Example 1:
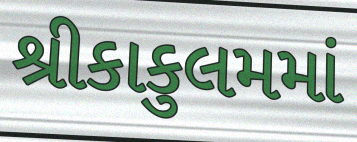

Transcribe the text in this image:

શ્રીકાકુલમમાં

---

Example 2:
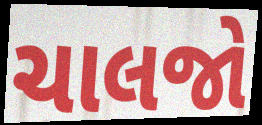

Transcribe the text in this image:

ચાલજો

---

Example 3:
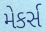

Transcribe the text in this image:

મેકર્સ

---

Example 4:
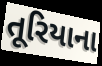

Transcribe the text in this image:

તૂરિયાના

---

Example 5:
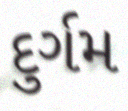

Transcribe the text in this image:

દુર્ગમ